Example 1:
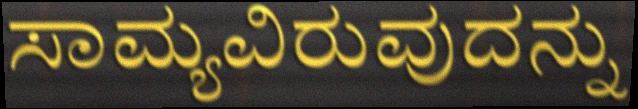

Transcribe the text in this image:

ಸಾಮ್ಯವಿರುವುದನ್ನು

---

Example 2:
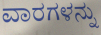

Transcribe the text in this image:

ವಾರಗಳನ್ನು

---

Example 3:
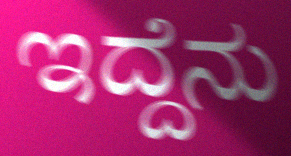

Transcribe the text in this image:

ಇದ್ದೆನು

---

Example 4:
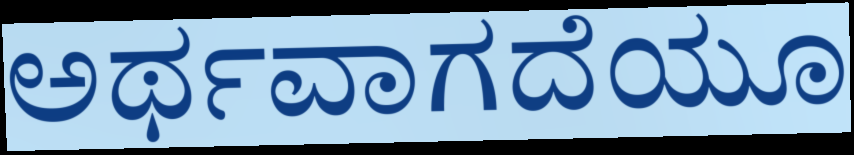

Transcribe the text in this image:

ಅರ್ಥವಾಗದೆಯೂ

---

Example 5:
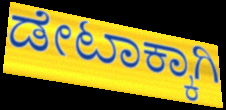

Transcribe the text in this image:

ಡೇಟಾಕ್ಕಾಗಿ